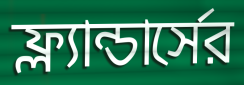
ফ্ল্যান্ডার্সের